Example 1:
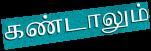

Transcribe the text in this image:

கண்டாலும்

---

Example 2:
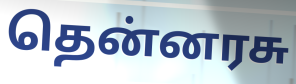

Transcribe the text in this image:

தென்னரசு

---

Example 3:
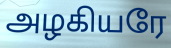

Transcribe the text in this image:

அழகியரே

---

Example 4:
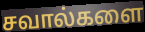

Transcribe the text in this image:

சவால்களை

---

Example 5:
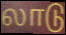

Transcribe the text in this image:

லாடு